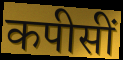
कपीसीं